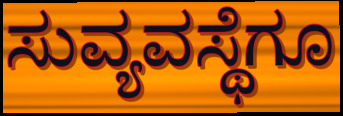
ಸುವ್ಯವಸ್ಥೆಗೂ